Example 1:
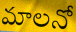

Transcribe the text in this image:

మాలనో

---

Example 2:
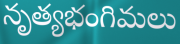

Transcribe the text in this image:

నృత్యభంగిమలు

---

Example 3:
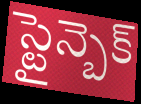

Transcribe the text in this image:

స్టైన్బెక్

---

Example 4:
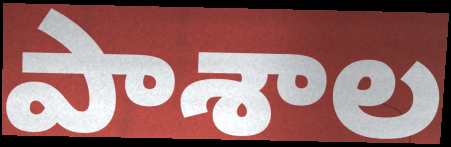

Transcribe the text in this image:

పాశాల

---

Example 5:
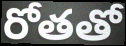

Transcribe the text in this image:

రోతతో